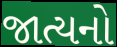
જાત્યનો